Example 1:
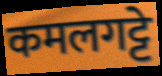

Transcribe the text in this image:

कमलगट्टे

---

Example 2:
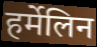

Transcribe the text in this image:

हर्मेलिन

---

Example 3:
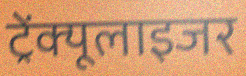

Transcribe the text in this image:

ट्रेंक्यूलाइजर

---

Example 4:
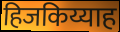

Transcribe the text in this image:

हिजकिय्याह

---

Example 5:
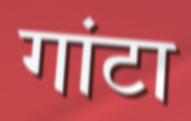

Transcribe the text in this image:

गांटा